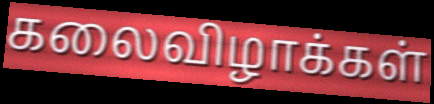
கலைவிழாக்கள்